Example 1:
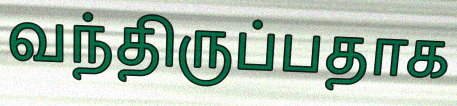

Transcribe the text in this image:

வந்திருப்பதாக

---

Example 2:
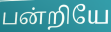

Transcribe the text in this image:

பன்றியே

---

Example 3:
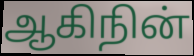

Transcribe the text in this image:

ஆகிநின்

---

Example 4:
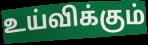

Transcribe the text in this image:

உய்விக்கும்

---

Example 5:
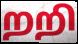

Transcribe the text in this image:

றறி